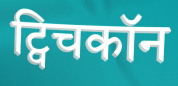
ट्विचकॉन